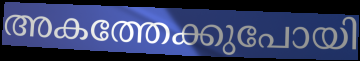
അകത്തേക്കുപോയി